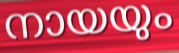
നായയും